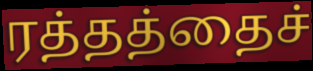
ரத்தத்தைச்